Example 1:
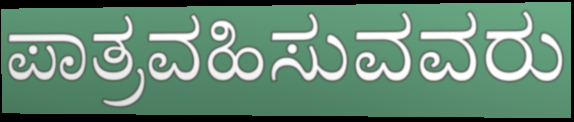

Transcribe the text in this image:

ಪಾತ್ರವಹಿಸುವವರು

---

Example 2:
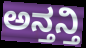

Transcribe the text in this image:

ಅನ್ತನ್ತಿ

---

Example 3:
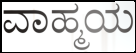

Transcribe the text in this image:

ವಾಹ್ಮಯ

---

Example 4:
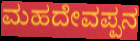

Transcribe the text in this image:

ಮಹದೇವಪ್ಪನ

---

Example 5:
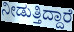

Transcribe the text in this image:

ನೀಡುತ್ತಿದ್ದಾರೆ